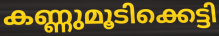
കണ്ണുമൂടിക്കെട്ടി